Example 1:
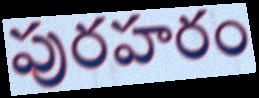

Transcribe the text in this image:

పురహరం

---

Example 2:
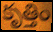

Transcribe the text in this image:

కృత్తిం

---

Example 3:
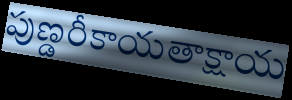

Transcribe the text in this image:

పుణ్డరీకాయతాక్షాయ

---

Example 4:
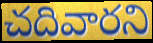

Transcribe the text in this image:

చదివారని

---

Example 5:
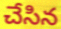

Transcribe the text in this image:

చేసిన